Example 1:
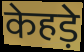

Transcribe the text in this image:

केहड़े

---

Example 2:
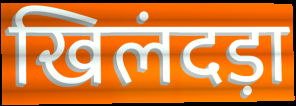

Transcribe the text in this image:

खिलंदड़ा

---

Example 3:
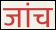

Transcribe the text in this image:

जांच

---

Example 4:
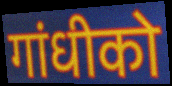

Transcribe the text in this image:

गांधीको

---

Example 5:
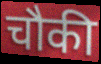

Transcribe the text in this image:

चौकी